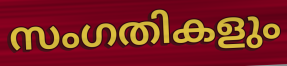
സംഗതികളും